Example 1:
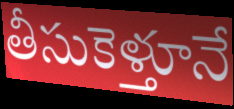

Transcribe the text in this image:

తీసుకెళ్తూనే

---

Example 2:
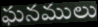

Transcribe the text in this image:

ఘనములు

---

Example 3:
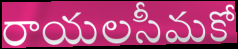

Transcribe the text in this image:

రాయలసీమకో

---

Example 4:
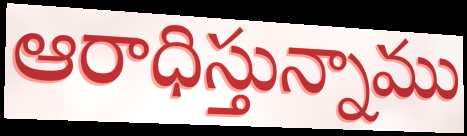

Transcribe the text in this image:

ఆరాధిస్తున్నాము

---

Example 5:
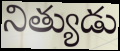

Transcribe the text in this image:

నిత్యుడు